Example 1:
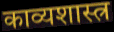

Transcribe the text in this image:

काव्यशास्त्र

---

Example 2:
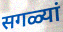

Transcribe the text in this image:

सगळ्यां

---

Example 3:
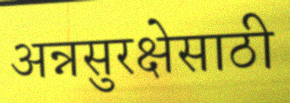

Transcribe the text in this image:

अन्नसुरक्षेसाठी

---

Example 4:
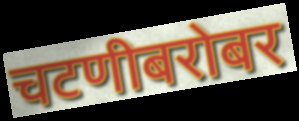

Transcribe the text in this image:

चटणीबरोबर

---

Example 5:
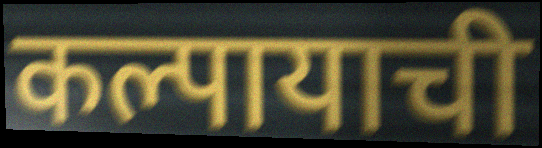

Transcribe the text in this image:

कल्पायाची